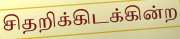
சிதறிக்கிடக்கின்ற